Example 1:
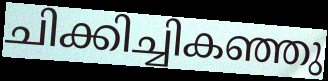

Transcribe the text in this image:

ചിക്കിച്ചികഞ്ഞു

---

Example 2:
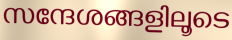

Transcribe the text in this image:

സന്ദേശങ്ങളിലൂടെ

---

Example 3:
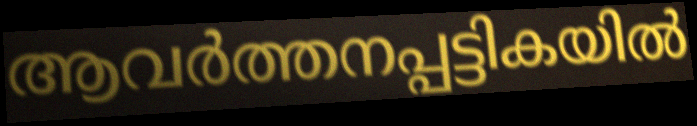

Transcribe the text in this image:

ആവർത്തനപ്പട്ടികയിൽ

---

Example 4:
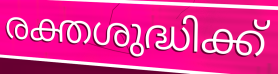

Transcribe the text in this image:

രക്തശുദ്ധിക്ക്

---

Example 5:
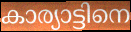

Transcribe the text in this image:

കാര്യാട്ടിനെ